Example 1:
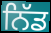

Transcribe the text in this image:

ਨਿੱਡ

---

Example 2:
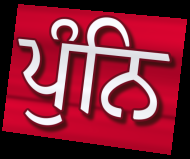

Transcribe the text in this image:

ਪੁੰਨਿ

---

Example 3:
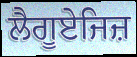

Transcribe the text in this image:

ਲੈਗੂਏਜਿਜ਼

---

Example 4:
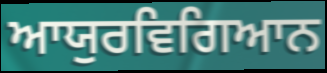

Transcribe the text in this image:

ਆਯੁਰਵਿਗਿਆਨ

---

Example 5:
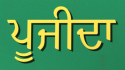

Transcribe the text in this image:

ਪੂਜੀਦਾ